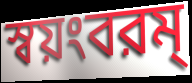
স্বয়ংবরম্